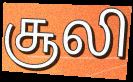
சூலி